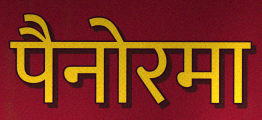
पैनोरमा